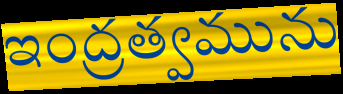
ఇంద్రత్వమును